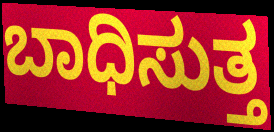
ಬಾಧಿಸುತ್ತ